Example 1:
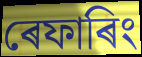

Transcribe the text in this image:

ৰেফাৰিং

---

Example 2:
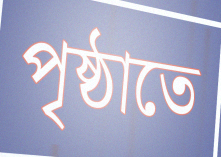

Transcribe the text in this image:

পৃষ্ঠাতে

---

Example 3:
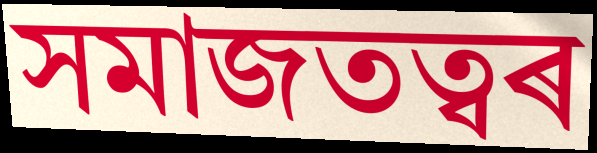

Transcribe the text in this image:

সমাজতত্বৰ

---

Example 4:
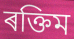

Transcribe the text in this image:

ৰক্তিম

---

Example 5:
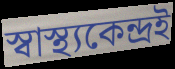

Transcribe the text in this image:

স্বাস্থ্যকেন্দ্ৰই